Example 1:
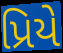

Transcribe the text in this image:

પ્રિયે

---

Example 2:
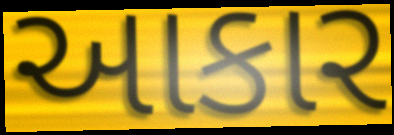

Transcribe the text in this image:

આકાર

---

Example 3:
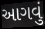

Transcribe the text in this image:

આગવું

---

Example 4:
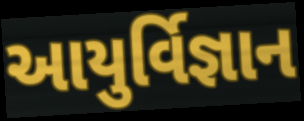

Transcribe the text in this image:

આયુર્વિજ્ઞાન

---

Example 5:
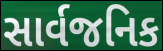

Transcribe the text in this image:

સાર્વજનિક